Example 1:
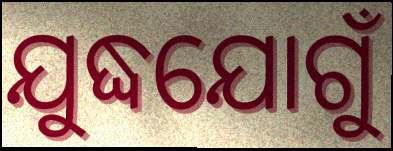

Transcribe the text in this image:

ଯୁଦ୍ଧଯୋଗୁଁ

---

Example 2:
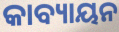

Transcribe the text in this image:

କାବ୍ୟାୟନ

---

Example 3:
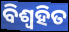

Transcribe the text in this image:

ବିଶ୍ଵହିତ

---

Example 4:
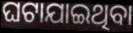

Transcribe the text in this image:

ଘଟାଯାଇଥିବା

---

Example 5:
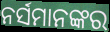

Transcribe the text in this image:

ନର୍ସମାନଙ୍କର